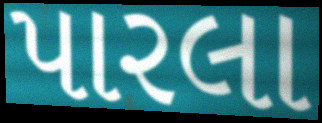
પારલા